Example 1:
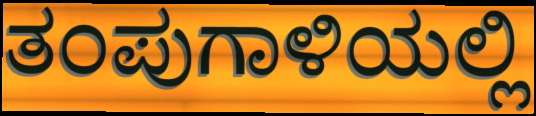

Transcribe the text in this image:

ತಂಪುಗಾಳಿಯಲ್ಲಿ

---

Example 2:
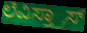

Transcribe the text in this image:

ಲೆವಿಸ್ತ್ರಾಸ್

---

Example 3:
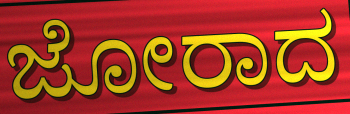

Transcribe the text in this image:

ಜೋರಾದ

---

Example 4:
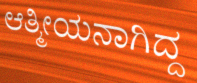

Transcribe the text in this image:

ಆತ್ಮೀಯನಾಗಿದ್ದ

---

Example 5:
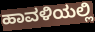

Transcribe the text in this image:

ಹಾವಳಿಯಲ್ಲಿ